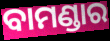
ବାମଣ୍ଡାର